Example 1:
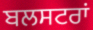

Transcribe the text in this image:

ਬਲਸਟਰਾਂ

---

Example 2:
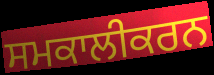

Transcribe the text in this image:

ਸਮਕਾਲੀਕਰਨ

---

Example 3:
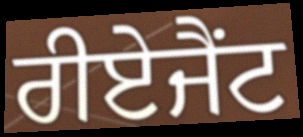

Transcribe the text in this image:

ਰੀਏਜੈਂਟ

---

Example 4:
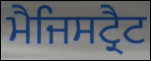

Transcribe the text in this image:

ਮੈਜਿਸਟ੍ਰੈਟ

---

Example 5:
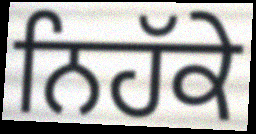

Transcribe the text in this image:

ਨਿਹੱਕੇ